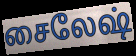
சைலேஷ்